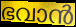
ഭവാൻ